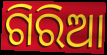
ଗିରିଆ